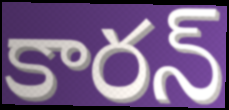
కారన్